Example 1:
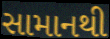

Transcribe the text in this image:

સામાનથી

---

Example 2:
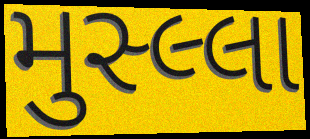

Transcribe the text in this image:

મુસ્લ્લા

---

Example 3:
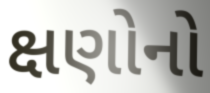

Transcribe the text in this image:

ક્ષણોનો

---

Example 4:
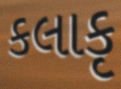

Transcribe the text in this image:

કલાકૃ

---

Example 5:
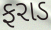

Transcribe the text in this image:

ફરાડ